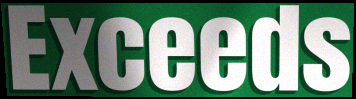
Exceeds